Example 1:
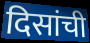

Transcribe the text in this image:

दिसांची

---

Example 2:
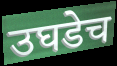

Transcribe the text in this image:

उघडेच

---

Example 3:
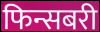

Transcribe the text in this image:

फिन्सबरी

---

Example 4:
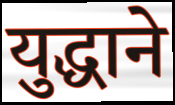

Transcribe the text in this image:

युद्धाने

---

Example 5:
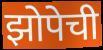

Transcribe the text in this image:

झोपेची